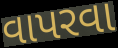
વાપરવા